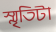
স্মৃতিটা